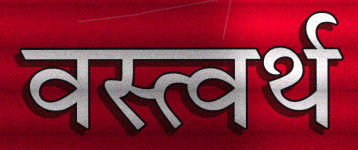
वस्त्वर्थ